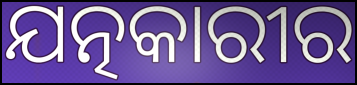
ଯତ୍ନକାରୀର